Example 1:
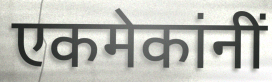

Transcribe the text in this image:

एकमेकांनीं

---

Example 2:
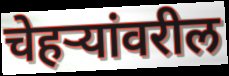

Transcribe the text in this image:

चेहऱ्यांवरील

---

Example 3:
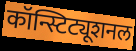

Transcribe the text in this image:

कॉन्स्टिट्यूशनल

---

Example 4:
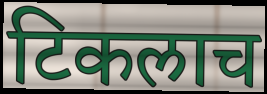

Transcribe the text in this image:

टिकलाच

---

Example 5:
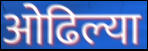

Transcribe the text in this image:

ओढिल्या